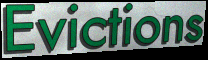
Evictions